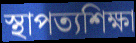
স্থাপত্যশিক্ষা